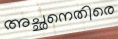
അച്ഛനെതിരെ